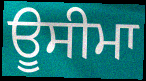
ਊਸੀਮਾ